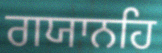
ਗਯਾਨਹਿ